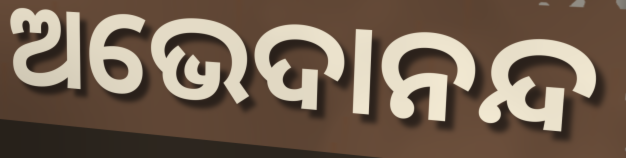
ଅଭେଦାନନ୍ଦ